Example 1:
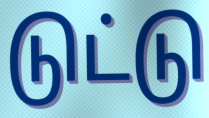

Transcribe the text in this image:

டுட்டு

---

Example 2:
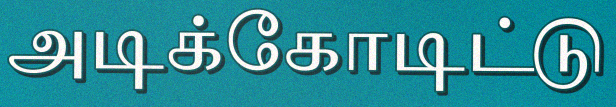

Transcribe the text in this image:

அடிக்கோடிட்டு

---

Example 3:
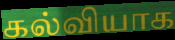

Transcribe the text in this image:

கல்வியாக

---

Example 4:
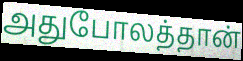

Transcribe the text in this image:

அதுபோலத்தான்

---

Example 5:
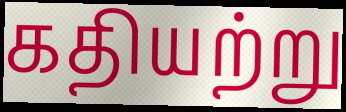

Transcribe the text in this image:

கதியற்று